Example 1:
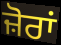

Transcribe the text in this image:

ਜ਼ੋਰਾਂ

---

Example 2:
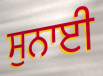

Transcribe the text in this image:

ਸੁਨਾਈ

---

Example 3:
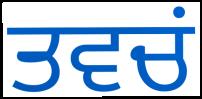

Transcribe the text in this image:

ਤਵਚਂ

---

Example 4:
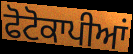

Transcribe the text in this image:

ਫੋਟੋਕਾਪੀਆਂ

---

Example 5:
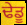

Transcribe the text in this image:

ਢੇਡੂ